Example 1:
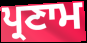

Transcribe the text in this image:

ਪ੍ਰਣਾਮ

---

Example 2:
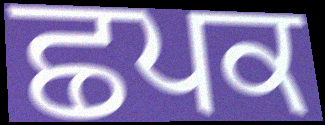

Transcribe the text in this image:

ਛਪਕ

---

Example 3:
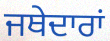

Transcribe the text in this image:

ਜਥੇਦਾਰਾਂ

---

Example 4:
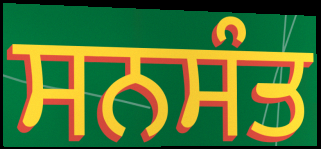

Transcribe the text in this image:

ਸਨਸੰਤ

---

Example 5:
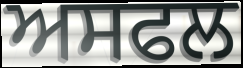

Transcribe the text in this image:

ਅਸਫਲ